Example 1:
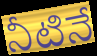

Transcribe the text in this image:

నీటినే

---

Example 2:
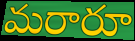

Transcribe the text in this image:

మరారూ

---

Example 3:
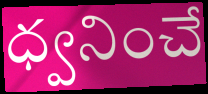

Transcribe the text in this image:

ధ్వనించే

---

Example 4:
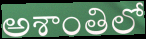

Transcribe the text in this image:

అశాంతిలో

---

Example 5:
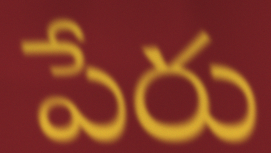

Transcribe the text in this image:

పేరు